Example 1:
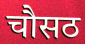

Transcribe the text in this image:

चौसठ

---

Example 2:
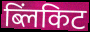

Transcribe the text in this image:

ब्लिंकिट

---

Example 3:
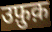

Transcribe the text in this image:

उफ़ुक़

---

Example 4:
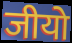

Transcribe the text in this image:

जीयो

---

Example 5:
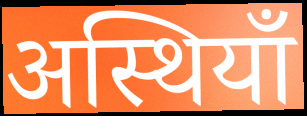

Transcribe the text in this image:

अस्थियाँ